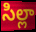
సిల్లా